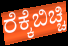
ರೆಕ್ಕೆಬಿಚ್ಚಿ